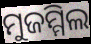
ମୁଜମ୍ମିଲ